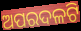
ଅପରଦଳଟି